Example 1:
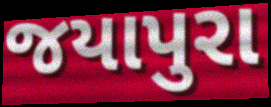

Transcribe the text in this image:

જયાપુરા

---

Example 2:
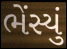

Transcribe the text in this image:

ભેંસ્યું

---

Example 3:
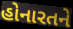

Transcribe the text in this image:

હોનારતને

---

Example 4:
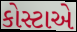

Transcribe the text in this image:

કોસ્ટાએ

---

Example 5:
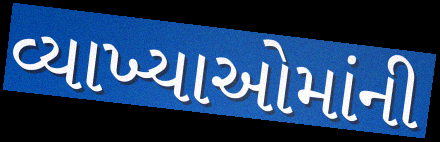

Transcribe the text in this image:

વ્યાખ્યાઓમાંની